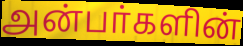
அன்பர்களின்